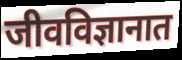
जीवविज्ञानात